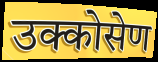
उक्कोसेण